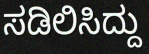
ಸಡಿಲಿಸಿದ್ದು